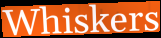
Whiskers